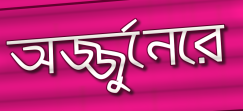
অর্জ্জুনেরে